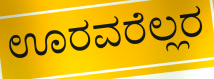
ಊರವರೆಲ್ಲರ